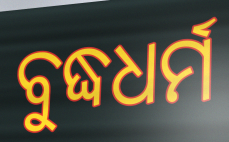
ବୁଦ୍ଧଧର୍ମ